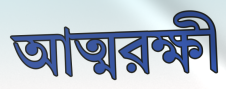
আত্মরক্ষী